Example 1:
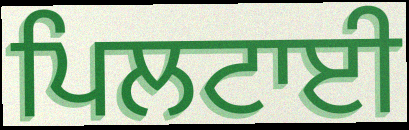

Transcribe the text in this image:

ਪਿਲਟਾਈ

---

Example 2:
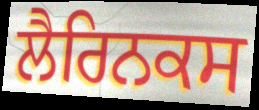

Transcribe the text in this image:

ਲੈਰਿਨਕਸ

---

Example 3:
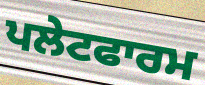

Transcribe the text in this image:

ਪਲੇਟਫਾਰਮ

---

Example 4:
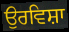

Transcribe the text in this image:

ਉਰਵਿਸ਼ਾ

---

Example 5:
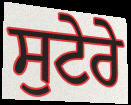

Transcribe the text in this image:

ਸੁਟੇਰੇ